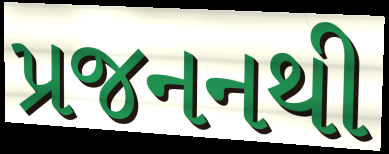
પ્રજનનથી